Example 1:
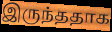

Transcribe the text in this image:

இருந்ததாக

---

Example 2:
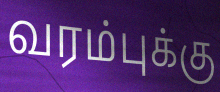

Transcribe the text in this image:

வரம்புக்கு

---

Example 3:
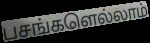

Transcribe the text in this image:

பசங்களெல்லாம்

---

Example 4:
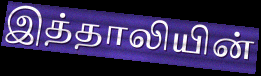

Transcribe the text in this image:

இத்தாலியின்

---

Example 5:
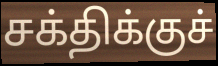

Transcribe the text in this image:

சக்திக்குச்